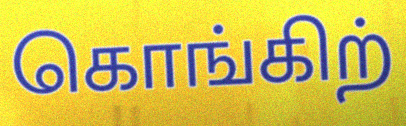
கொங்கிற்